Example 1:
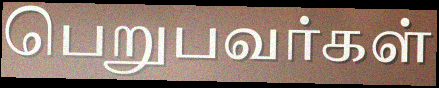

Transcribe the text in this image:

பெறுபவர்கள்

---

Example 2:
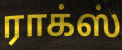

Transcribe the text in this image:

ராக்ஸ்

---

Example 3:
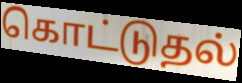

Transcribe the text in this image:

கொட்டுதல்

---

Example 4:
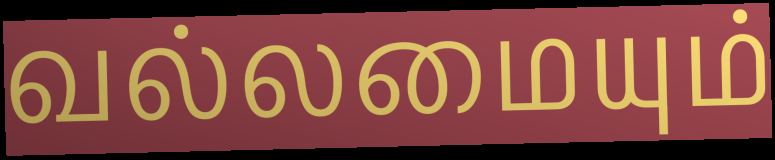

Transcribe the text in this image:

வல்லமையும்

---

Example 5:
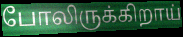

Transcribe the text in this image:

போலிருக்கிறாய்